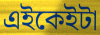
এইকেইটা